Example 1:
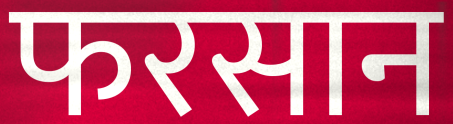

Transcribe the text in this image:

फरसान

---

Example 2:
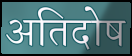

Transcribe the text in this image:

अतिदोष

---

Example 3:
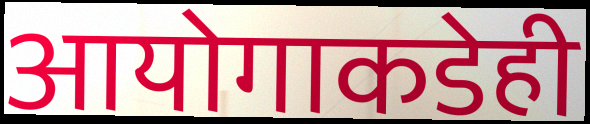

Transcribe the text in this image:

आयोगाकडेही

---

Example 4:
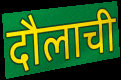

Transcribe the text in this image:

दौलाची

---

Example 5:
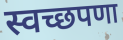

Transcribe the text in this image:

स्वच्छपणा